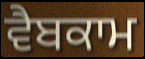
ਵੈਬਕਾਮ